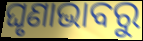
ଘୃଣାଭାବରୁ